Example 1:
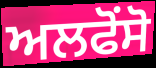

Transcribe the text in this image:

ਅਲਫੋਂਸੋ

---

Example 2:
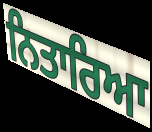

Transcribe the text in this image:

ਨਿਤਾਰਿਆ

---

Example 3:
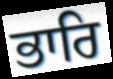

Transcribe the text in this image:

ਭਾਰਿ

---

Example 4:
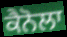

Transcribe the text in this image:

ਕੈਨੋਲਾ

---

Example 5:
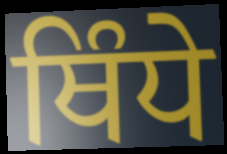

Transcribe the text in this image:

ਥਿੰਧੇ